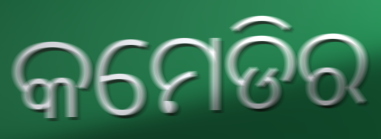
କମେଡିର